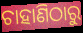
ଚାହାଣିଠାରୁ